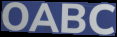
OABC